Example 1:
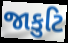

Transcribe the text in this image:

જાકુટિ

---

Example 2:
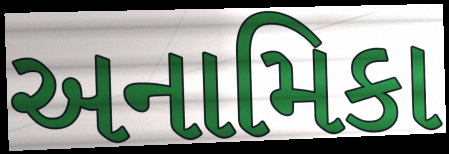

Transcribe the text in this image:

અનામિકા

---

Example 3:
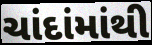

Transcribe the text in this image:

ચાંદાંમાંથી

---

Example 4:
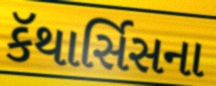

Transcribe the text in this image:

કૅથાર્સિસના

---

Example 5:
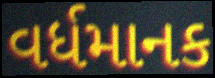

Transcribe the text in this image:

વર્ધમાનક